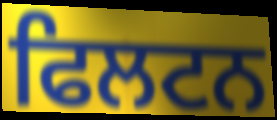
ਫਿਲਟਨ